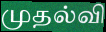
முதல்வி